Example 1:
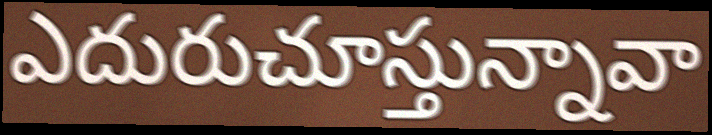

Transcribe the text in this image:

ఎదురుచూస్తున్నావా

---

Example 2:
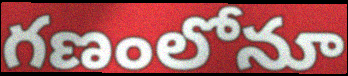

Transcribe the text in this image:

గణంలోనూ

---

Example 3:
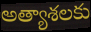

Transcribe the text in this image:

అత్యాశలకు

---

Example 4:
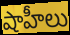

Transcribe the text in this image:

షాహీలు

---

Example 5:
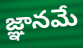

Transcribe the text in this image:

జ్ఞానమే